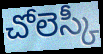
చోలెస్కీ